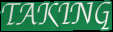
TAKING